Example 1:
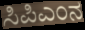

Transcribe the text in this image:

ಸಿಪಿಎಂನ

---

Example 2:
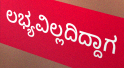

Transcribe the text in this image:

ಲಭ್ಯವಿಲ್ಲದಿದ್ದಾಗ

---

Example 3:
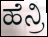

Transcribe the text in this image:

ಹೆನ್ರಿ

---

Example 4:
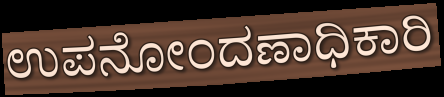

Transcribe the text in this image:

ಉಪನೋಂದಣಾಧಿಕಾರಿ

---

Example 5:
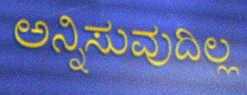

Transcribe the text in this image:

ಅನ್ನಿಸುವುದಿಲ್ಲ